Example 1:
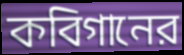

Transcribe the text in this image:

কবিগানের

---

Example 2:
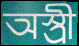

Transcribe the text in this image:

অস্ত্রী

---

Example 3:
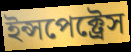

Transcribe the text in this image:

ইন্সপেক্ট্রেস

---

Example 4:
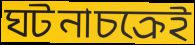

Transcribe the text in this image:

ঘটনাচক্রেই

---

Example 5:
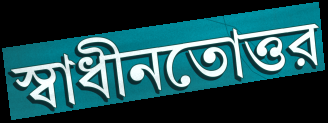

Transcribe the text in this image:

স্বাধীনতোত্তর